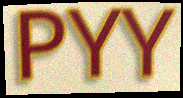
PYY